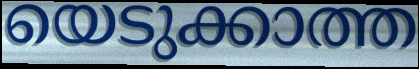
യെടുക്കാത്ത